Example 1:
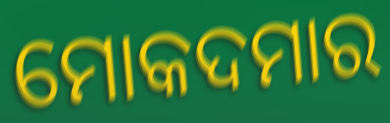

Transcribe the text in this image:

ମୋକଦମାର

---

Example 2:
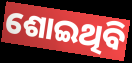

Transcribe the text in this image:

ଶୋଇଥିବି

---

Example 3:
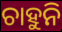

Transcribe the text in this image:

ଚାହୁନି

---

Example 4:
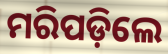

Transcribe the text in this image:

ମରିପଡ଼ିଲେ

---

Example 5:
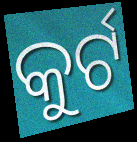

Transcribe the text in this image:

କୁର୍ଟ